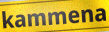
kammena